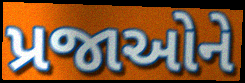
પ્રજાઓને